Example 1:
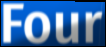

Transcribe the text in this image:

Four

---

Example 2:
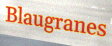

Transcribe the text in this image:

Blaugranes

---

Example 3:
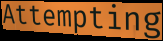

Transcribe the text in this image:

Attempting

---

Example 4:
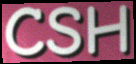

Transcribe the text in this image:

CSH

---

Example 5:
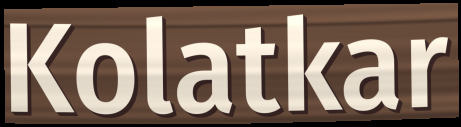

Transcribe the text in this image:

Kolatkar